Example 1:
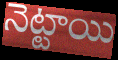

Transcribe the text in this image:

నెట్టాయి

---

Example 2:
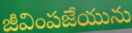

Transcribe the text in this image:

జీవింపజేయును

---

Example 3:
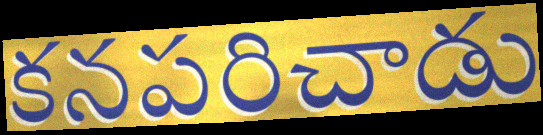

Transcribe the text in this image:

కనపరిచాడు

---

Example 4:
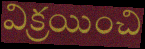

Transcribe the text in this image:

విక్రయించి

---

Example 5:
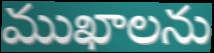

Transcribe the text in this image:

ముఖాలను